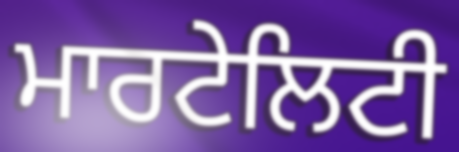
ਮਾਰਟੇਲਿਟੀ